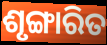
ଶୃଙ୍ଗାରିତ